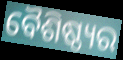
ବୈଶିଷ୍ଠ୍ୟର